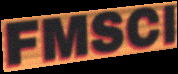
FMSCI